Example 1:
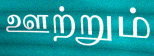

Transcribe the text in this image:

ஊற்றும்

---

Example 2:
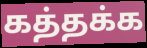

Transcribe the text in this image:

கத்தக்க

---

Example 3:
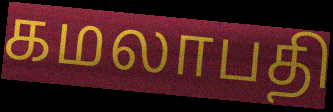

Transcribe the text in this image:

கமலாபதி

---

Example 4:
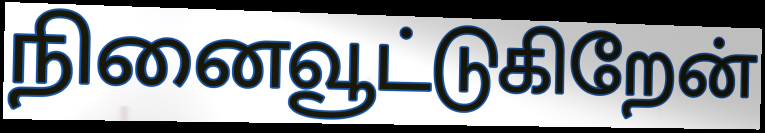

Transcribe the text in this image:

நினைவூட்டுகிறேன்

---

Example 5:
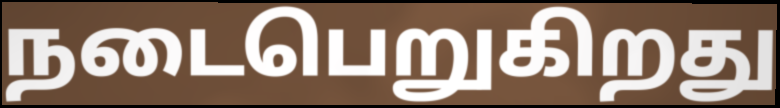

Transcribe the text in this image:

நடைபெறுகிறது